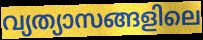
വ്യത്യാസങ്ങളിലെ